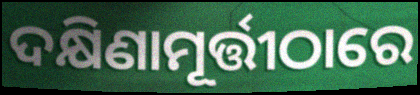
ଦକ୍ଷିଣାମୂର୍ତ୍ତୀଠାରେ